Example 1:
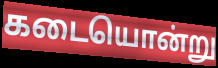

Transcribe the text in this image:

கடையொன்று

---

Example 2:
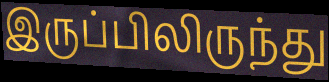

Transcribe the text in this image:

இருப்பிலிருந்து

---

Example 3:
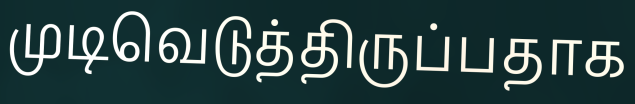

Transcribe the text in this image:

முடிவெடுத்திருப்பதாக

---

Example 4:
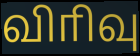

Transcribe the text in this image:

விரிவு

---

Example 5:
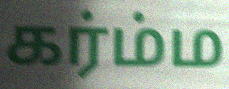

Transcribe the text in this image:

கர்ம்ம